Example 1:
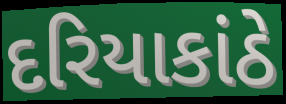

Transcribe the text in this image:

દરિયાકાંઠે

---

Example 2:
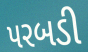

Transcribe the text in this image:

પરબડી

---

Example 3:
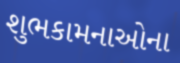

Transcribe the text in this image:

શુભકામનાઓના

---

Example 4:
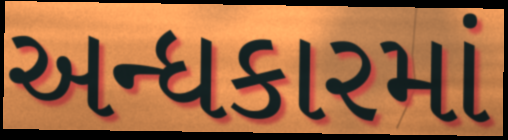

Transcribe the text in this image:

અન્ધકારમાં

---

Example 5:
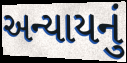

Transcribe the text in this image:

અન્યાયનું